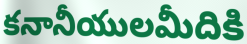
కనానీయులమీదికి